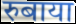
रुबाया